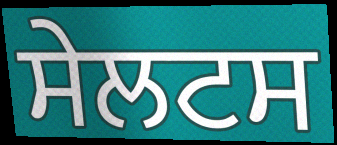
ਸੇਲਟਸ